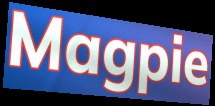
Magpie